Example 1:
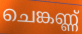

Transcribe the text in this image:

ചെങ്കണ്ണ്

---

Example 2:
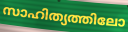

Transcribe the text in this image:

സാഹിത്യത്തിലോ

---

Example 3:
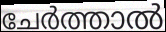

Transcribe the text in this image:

ചേർത്താൽ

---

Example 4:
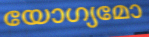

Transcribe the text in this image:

യോഗ്യമോ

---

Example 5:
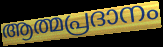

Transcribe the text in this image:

ആത്മപ്രദാനം